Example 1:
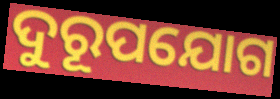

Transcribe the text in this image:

ଦୁରୂପଯୋଗ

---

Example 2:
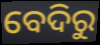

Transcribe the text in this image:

ବେଦିରୁ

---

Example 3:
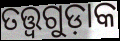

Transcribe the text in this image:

ତତ୍ତ୍ୱଗୁଡ଼ାକ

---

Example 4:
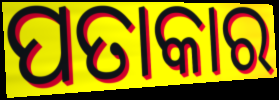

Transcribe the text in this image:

ପତାକାର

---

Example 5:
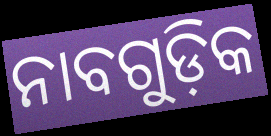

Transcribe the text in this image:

ନାବଗୁଡ଼ିକ